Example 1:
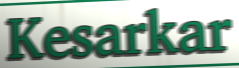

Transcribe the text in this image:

Kesarkar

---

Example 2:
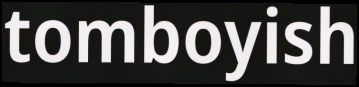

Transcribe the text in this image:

tomboyish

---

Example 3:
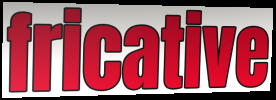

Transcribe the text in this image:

fricative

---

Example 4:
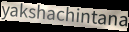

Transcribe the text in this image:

yakshachintana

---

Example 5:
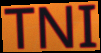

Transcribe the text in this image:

TNI